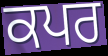
ਕਪਰ